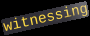
witnessing